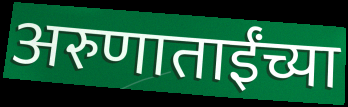
अरुणाताईंच्या